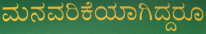
ಮನವರಿಕೆಯಾಗಿದ್ದರೂ